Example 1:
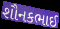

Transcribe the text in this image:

શૌનકભાઈ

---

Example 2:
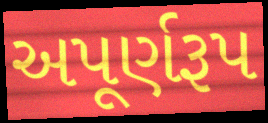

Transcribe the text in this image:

અપૂર્ણરૂપ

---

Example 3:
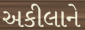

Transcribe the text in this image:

અકીલાને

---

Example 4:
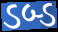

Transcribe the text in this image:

ડબ્ડ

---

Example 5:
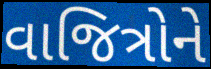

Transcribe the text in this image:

વાજિત્રોને